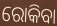
ରୋକିବା